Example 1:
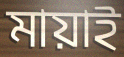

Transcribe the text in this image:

মায়াই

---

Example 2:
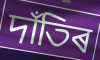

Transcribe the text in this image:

দাঁতিৰ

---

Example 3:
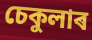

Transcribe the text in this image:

চেকুলাৰ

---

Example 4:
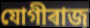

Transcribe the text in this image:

যোগীৰাজ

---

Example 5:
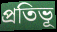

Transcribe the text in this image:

প্ৰতিভূ